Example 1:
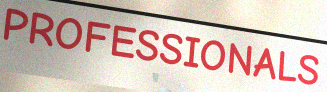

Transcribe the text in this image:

PROFESSIONALS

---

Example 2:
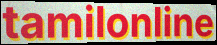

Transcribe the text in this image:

tamilonline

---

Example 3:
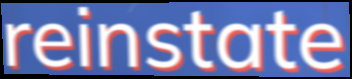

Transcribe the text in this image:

reinstate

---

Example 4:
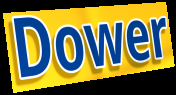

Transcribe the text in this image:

Dower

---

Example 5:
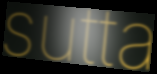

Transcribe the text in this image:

sutta